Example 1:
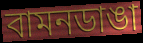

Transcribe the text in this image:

বামনডাঙা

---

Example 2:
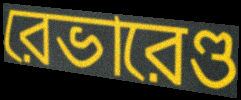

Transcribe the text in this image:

রেভারেণ্ড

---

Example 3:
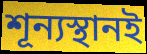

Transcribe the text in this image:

শূন্যস্থানই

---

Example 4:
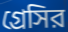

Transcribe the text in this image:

গ্রেসির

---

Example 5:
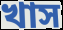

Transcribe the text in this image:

খাস